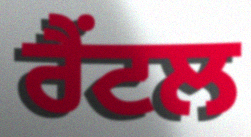
ਰੈਂਟਲ